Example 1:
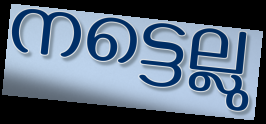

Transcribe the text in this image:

നട്ടെല്ലു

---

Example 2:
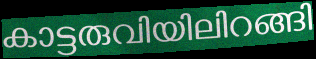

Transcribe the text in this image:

കാട്ടരുവിയിലിറങ്ങി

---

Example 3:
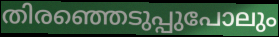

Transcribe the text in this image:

തിരഞ്ഞെടുപ്പുപോലും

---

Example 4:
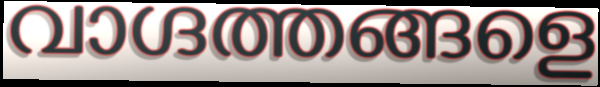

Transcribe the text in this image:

വാഗ്ദത്തങ്ങളെ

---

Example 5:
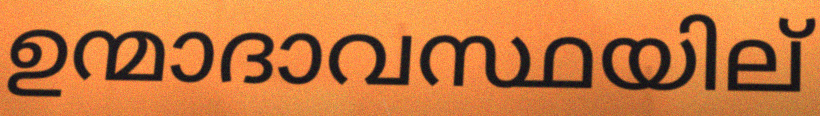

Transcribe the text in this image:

ഉന്മാദാവസ്ഥയില്